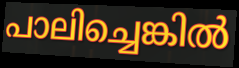
പാലിച്ചെങ്കിൽ